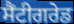
ਸੈਂਟੀਗਰੇਡ